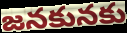
జనకునకు